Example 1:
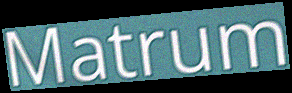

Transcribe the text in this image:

Matrum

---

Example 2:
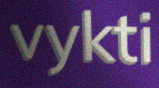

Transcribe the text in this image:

vykti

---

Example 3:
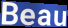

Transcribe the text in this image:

Beau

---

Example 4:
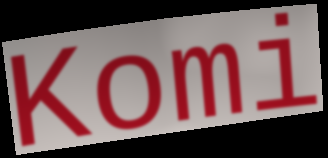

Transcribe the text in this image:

Komi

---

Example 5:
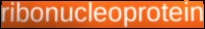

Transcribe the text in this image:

ribonucleoprotein